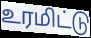
உரமிட்டு